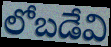
లోబడేవి